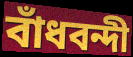
বাঁধবন্দী